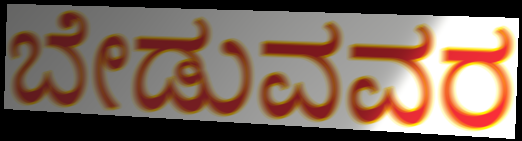
ಬೇಡುವವರ